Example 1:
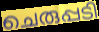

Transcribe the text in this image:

ചെരുപ്പടി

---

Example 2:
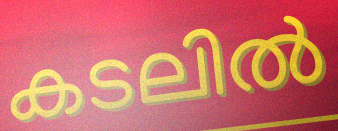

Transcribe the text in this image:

കടലിൽ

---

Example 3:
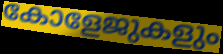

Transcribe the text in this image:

കോളേജുകളും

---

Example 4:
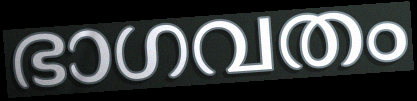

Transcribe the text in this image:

ഭാഗവതം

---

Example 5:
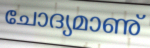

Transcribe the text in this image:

ചോദ്യമാണു്